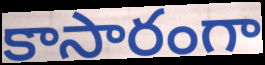
కాసారంగా